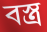
বস্ত্র